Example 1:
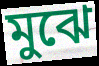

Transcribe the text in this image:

মুঝে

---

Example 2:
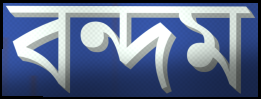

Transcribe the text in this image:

বন্দম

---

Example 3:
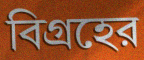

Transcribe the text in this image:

বিগ্রহের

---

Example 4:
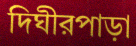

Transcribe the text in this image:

দিঘীরপাড়া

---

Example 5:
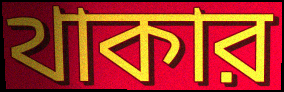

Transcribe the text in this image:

থাকার